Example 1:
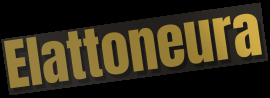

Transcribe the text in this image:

Elattoneura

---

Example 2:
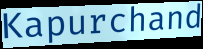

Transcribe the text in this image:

Kapurchand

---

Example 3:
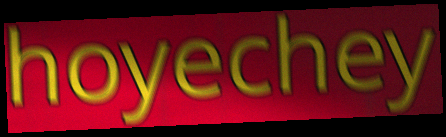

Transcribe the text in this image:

hoyechey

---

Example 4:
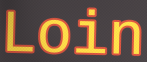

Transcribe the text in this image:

Loin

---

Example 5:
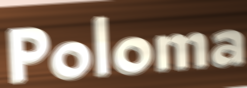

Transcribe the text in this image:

Poloma